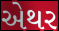
એથર